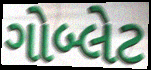
ગોબ્લેટ